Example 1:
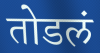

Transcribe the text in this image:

तोडलं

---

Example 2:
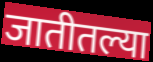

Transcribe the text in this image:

जातीतल्या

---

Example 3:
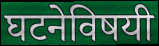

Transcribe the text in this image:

घटनेविषयी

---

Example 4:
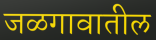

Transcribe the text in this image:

जळगावातील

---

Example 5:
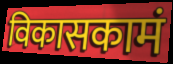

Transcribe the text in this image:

विकासकामं